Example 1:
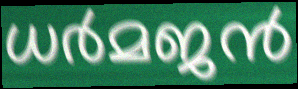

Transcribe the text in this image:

ധർമജൻ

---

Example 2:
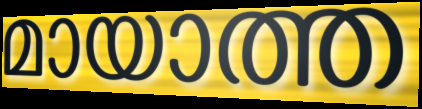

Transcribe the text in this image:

മായാത്ത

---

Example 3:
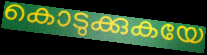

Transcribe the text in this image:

കൊടുക്കുകയേ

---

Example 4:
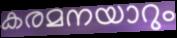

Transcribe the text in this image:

കരമനയാറും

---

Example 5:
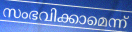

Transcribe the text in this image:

സംഭവിക്കാമെന്ന്